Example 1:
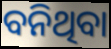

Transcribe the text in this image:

ବନିଥିବା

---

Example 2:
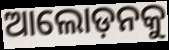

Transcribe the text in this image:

ଆଲୋଡ଼ନକୁ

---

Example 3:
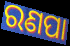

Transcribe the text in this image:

ରଣପା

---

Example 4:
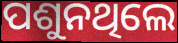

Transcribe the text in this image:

ପଶୁନଥିଲେ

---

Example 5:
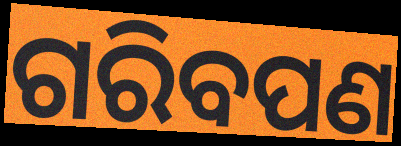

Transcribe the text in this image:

ଗରିବପଣ